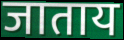
जाताय